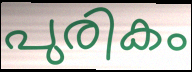
പുരികം